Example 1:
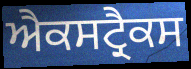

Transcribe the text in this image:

ਐਕਸਟ੍ਰੈਕਸ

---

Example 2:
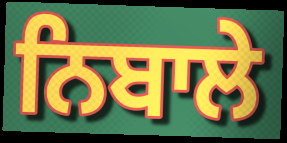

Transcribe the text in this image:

ਨਿਬਾਲੇ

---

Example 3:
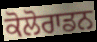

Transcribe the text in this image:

ਕੋਲੋਰਾਡਨ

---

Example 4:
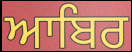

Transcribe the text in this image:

ਆਬਿਰ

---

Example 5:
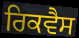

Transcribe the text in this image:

ਰਿਕਵੈਸ